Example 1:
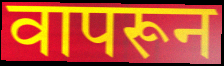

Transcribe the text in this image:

वापरून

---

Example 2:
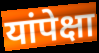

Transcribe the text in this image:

यांपेक्षा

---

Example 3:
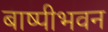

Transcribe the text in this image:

बाष्पीभवन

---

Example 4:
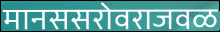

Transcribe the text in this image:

मानससरोवराजवळ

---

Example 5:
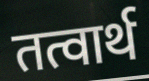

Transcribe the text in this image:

तत्वार्थ